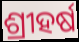
ଶ୍ରୀହର୍ଷ